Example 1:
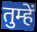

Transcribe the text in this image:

तुम्‍हें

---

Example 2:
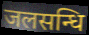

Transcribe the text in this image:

जलसन्धि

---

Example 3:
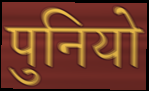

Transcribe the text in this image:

पुनियो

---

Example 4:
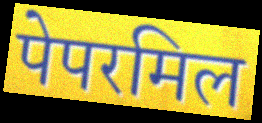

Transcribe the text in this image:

पेपरमिल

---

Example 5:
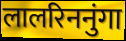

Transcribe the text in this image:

लालरिननुंगा